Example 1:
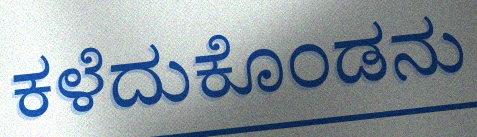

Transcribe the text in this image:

ಕಳೆದುಕೊಂಡನು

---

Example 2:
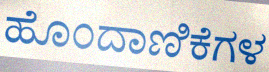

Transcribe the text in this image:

ಹೊಂದಾಣಿಕೆಗಳ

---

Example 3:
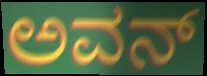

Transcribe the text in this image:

ಅವನ್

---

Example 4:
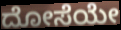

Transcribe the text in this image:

ದೋಸೆಯೇ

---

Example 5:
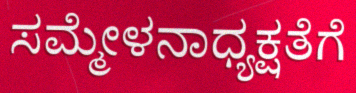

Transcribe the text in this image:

ಸಮ್ಮೇಳನಾಧ್ಯಕ್ಷತೆಗೆ